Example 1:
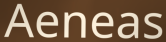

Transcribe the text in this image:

Aeneas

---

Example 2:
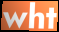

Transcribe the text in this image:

wht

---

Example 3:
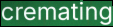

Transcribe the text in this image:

cremating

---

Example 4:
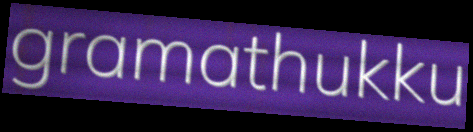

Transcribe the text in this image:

gramathukku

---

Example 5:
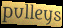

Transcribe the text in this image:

pulleys